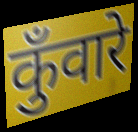
कुँवारे